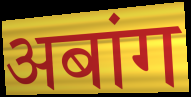
अबांग